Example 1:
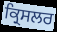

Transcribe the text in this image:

ਕ੍ਰਿਸਲਰ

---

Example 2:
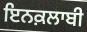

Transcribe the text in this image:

ਇਨਕ਼ਲਾਬੀ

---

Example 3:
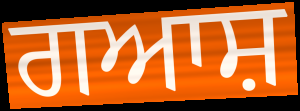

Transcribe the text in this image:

ਗਆਸ਼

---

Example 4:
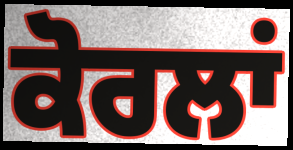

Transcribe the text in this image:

ਕੋਰਲਾਂ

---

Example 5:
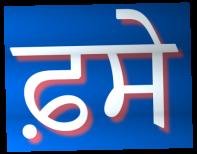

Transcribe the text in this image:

ਫ਼ਸੇ